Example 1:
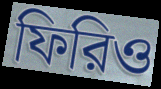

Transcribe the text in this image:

ফিরিও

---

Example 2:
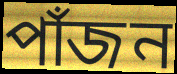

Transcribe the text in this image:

পাঁজন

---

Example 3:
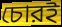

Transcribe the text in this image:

চোরই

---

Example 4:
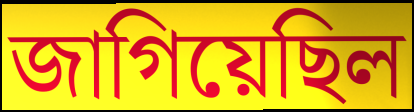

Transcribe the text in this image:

জাগিয়েছিল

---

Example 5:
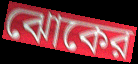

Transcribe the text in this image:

ঝোকের